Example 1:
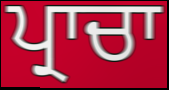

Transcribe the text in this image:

ਪ੍ਰਾਚਾ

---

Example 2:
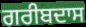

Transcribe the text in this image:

ਗਰੀਬਦਾਸ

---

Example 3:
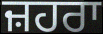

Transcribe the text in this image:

ਜ਼ਹਰਾ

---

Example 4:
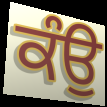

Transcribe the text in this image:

ਕੰਉ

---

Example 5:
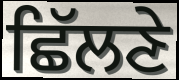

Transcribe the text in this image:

ਛਿੱਲਣੇ